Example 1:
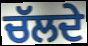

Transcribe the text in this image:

ਚੱਲਦੇ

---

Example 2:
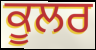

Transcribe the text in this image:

ਕੂਲਰ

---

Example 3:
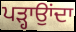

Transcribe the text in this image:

ਪੜ੍ਹਾਉਾਂਦਾ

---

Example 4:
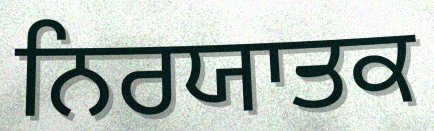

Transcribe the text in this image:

ਨਿਰਯਾਤਕ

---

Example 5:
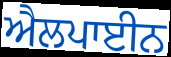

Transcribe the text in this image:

ਐਲਪਾਈਨ